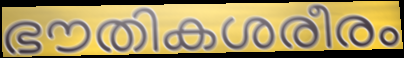
ഭൗതികശരീരം